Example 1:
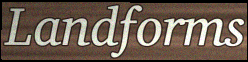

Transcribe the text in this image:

Landforms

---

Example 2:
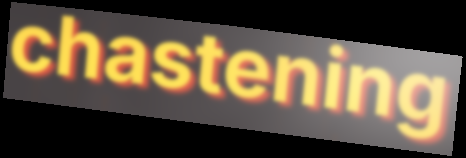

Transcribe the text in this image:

chastening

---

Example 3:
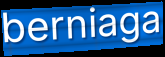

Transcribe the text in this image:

berniaga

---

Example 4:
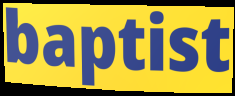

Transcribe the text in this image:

baptist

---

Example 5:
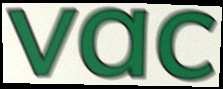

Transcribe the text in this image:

vac